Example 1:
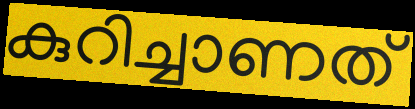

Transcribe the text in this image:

കുറിച്ചാണത്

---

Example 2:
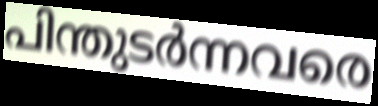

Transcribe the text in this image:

പിന്തുടർന്നവരെ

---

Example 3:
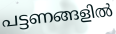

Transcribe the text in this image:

പട്ടണങ്ങളിൽ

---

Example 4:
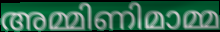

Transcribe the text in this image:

അമ്മിണിമാമ്മ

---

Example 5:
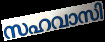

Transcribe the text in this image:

സഹവാസി